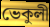
ভেকুলী